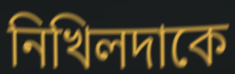
নিখিলদাকে